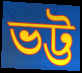
ভট্ট